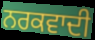
ਨਰਕਵਾਦੀ